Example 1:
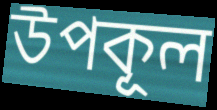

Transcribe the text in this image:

উপকূল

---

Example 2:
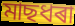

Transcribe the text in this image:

মাছধৰা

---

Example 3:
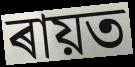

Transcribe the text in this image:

ৰায়ত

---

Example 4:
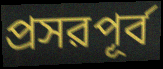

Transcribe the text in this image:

প্ৰসৱপূৰ্ব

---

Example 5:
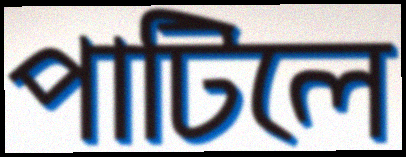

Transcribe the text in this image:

পাটিলে